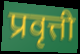
प्रवृत्ती